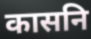
कासनि